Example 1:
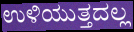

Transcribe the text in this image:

ಉಳಿಯುತ್ತದಲ್ಲ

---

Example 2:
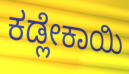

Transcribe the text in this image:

ಕಡ್ಲೇಕಾಯಿ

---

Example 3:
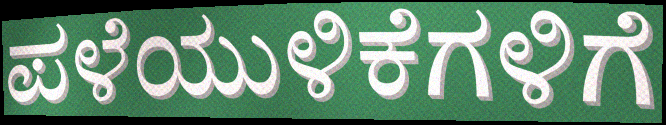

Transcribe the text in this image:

ಪಳೆಯುಳಿಕೆಗಳಿಗೆ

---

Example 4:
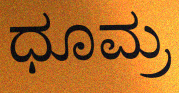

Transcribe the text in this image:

ಧೂಮ್ರ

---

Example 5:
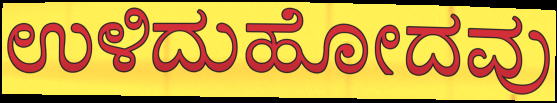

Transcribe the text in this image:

ಉಳಿದುಹೋದವು